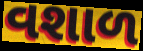
વશાળ